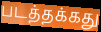
படத்தக்கது